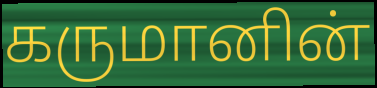
கருமானின்